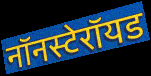
नॉनस्टेरॉयड